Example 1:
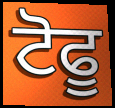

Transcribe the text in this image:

ਟੋਫੂ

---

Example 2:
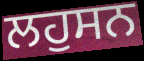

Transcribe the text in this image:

ਲਹੁਸਨ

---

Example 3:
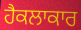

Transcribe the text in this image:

ਹੈਕਲਾਕਾਰ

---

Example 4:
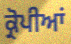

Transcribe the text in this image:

ਕ੍ਰੋਪੀਆਂ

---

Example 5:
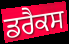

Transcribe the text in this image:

ਡਰੈਕਸ